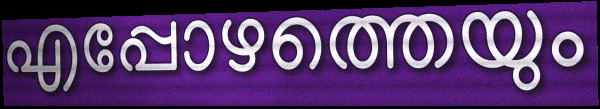
എപ്പോഴത്തെയും